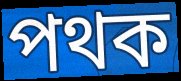
পথক